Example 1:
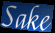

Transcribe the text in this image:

Sake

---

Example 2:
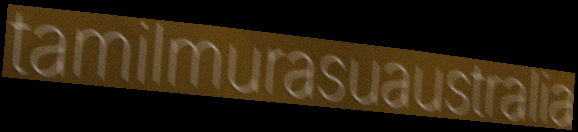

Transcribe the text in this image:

tamilmurasuaustralia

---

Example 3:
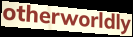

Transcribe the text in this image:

otherworldly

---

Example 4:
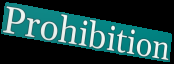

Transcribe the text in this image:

Prohibition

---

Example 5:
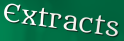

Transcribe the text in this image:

Extracts